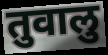
तुवालु